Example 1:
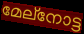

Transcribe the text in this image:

മേല്നോട്ട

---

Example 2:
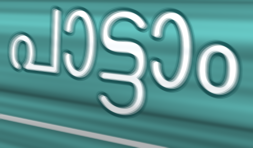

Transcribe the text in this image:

പാട്ടാം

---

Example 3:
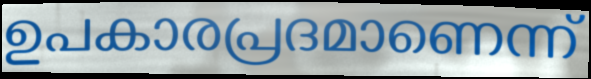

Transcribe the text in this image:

ഉപകാരപ്രദമാണെന്ന്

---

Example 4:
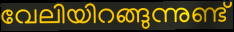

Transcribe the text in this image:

വേലിയിറങ്ങുന്നുണ്ട്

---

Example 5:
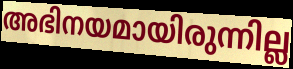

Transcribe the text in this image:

അഭിനയമായിരുന്നില്ല